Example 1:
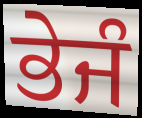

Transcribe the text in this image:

ਭੇਜੰ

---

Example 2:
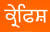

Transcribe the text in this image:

ਕ੍ਰੇਫਿਸ਼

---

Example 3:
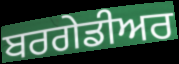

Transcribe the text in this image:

ਬਰਗੇਡੀਅਰ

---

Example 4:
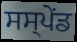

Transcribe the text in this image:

ਸਸ੍ਪੇੰਡ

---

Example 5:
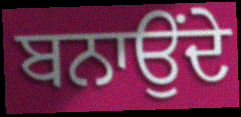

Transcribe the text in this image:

ਬਨਾਉਂਦੇ